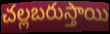
చల్లబరుస్తాయి